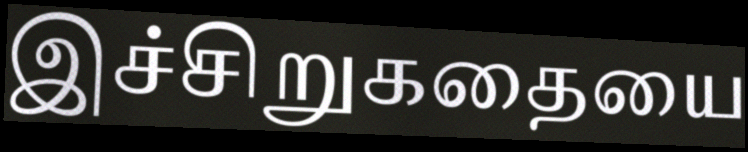
இச்சிறுகதையை